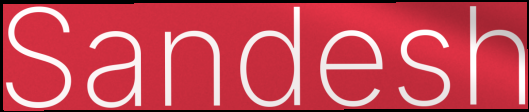
Sandesh